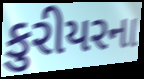
કુરીયરના